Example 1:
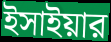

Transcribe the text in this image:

ইসাইয়ার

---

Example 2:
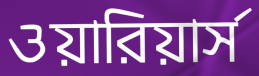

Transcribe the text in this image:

ওয়ারিয়ার্স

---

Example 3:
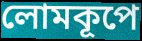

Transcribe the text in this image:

লোমকূপে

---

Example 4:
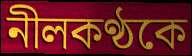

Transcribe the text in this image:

নীলকণ্ঠকে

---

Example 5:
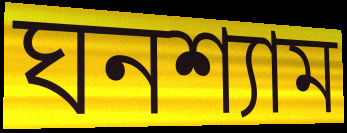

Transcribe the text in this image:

ঘনশ্যাম